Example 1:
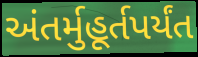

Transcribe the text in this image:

અંતર્મુહૂર્તપર્યંત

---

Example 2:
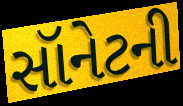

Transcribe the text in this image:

સૉનેટની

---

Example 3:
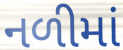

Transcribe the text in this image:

નળીમાં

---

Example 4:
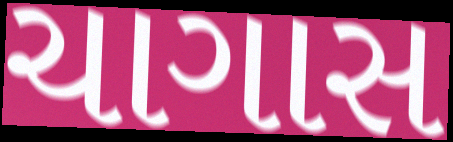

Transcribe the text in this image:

ચાગાસ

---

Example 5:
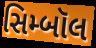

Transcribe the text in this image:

સિમ્બૉલ